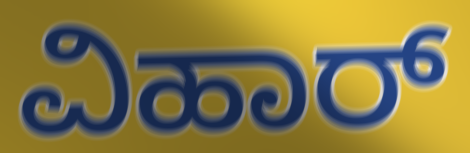
ವಿಹಾರ್